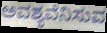
ಅವಶ್ಯವೆನಿಸುವ